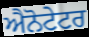
ਐਨੋਟੇਟਰ